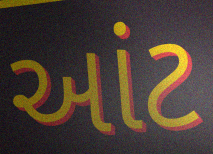
આંટ